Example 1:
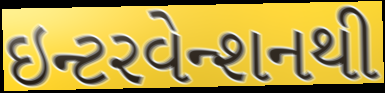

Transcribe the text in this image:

ઇન્ટરવેન્શનથી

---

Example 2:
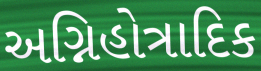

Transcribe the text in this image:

અગ્નિહોત્રાદિક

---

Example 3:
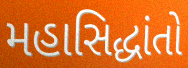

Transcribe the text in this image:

મહાસિદ્ધાંતો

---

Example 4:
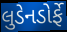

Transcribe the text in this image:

લુડેનડોર્ફે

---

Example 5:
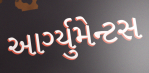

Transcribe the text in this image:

આર્ગ્યુમેન્ટસ